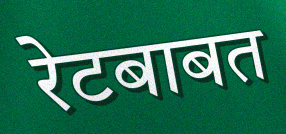
रेटबाबत